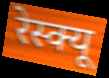
रेस्क्यू